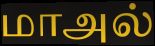
மாஅல்